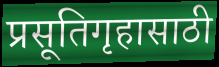
प्रसूतिगृहासाठी